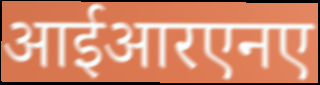
आईआरएनए